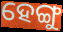
ହେଙ୍ଗୁ